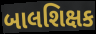
બાલશિક્ષક